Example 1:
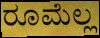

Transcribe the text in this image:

ರೂಮೆಲ್ಲ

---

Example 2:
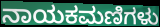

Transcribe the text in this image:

ನಾಯಕಮಣಿಗಳು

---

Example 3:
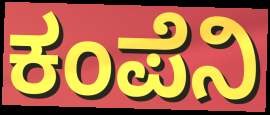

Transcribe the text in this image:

ಕಂಪೆನಿ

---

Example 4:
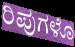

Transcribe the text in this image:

ರಿಪುಗಳೊ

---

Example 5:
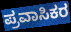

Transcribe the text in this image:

ಪ್ರವಾಸಿಕರ